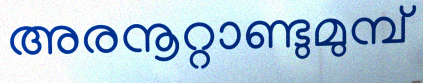
അരനൂറ്റാണ്ടുമുമ്പ്